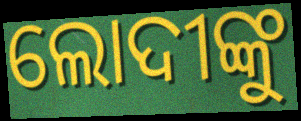
ଲୋଦୀଙ୍କୁ